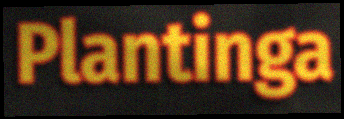
Plantinga